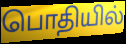
பொதியில்